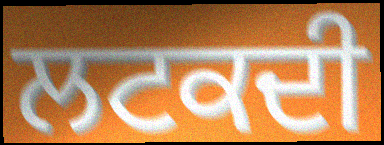
ਲਟਕਦੀ